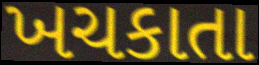
ખચકાતા